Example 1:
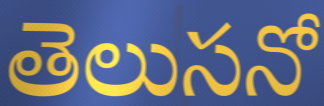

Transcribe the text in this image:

తెలుసనో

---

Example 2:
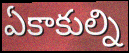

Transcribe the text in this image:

ఏకాకుల్ని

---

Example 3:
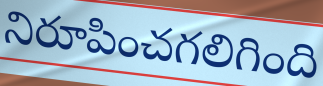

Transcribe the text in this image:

నిరూపించగలిగింది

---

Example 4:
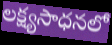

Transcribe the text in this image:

లక్ష్యసాధనలో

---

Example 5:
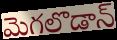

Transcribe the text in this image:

మెగలొడాన్